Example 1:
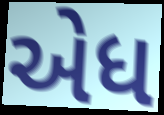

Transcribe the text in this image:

એધ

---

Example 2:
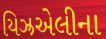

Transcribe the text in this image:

યિઝ્રએલીના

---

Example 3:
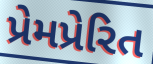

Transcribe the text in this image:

પ્રેમપ્રેરિત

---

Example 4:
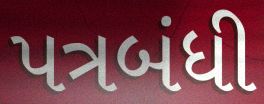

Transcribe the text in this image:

પત્રબંધી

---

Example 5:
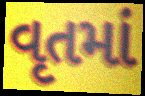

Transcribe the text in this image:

વૃતમાં